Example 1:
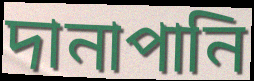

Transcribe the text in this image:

দানাপানি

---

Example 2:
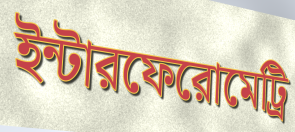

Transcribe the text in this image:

ইন্টারফেরোমেট্রি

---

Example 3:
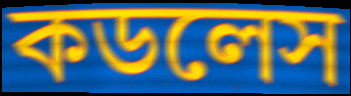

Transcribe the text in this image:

কডলেস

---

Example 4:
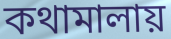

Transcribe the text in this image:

কথামালায়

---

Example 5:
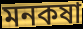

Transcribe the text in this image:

মনকষা